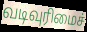
வடிவுரிமைச்